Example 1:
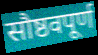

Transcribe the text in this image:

सौष्ठवपूर्ण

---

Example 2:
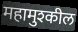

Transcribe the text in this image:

महामुश्कील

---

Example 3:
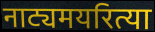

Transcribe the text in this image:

नाट्यमयरित्या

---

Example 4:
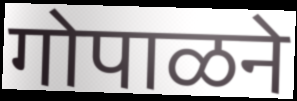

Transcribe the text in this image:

गोपाळने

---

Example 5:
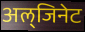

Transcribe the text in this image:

अल्जिनेट